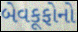
બેવકૂફોનો